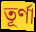
তূর্ণা